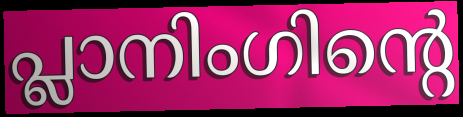
പ്ലാനിംഗിന്റെ